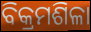
ବିକ୍ରମଶିଳା